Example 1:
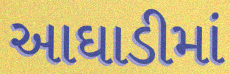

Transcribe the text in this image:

આઘાડીમાં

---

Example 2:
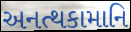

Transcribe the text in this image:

અનત્થકામાનિ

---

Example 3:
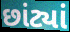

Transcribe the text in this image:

છાંટ્યાં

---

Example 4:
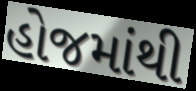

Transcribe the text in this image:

હોજમાંથી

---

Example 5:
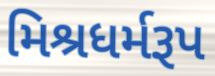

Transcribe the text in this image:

મિશ્રધર્મરૂપ